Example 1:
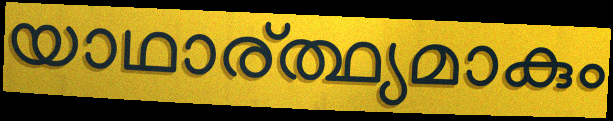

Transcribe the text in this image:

യാഥാര്ത്ഥ്യമാകും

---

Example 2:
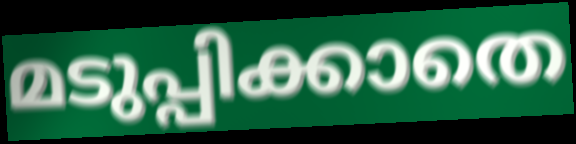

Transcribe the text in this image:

മടുപ്പിക്കാതെ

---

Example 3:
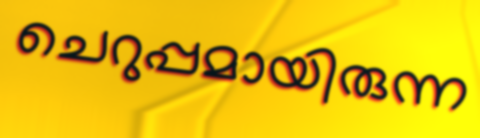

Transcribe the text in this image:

ചെറുപ്പമായിരുന്ന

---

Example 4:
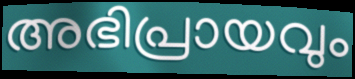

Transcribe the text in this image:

അഭിപ്രായവും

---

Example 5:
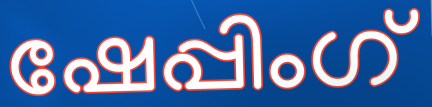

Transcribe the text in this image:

ഷേപ്പിംഗ്